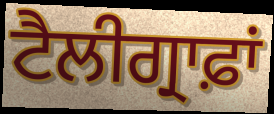
ਟੈਲੀਗ੍ਰਾਫ਼ਾਂ